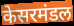
केसरमंडल